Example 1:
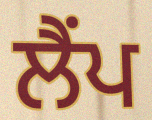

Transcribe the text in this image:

ਲੈਂਪ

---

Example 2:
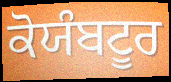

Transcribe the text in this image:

ਕੋਯੰਬਟੂਰ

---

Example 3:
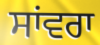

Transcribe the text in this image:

ਸਾਂਵਰਾ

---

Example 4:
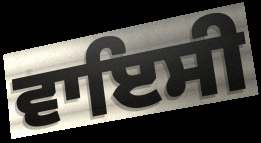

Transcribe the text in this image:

ਵਾਇਸੀ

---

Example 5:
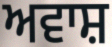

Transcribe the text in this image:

ਅਵਾਸ਼